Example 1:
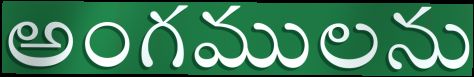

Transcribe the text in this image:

అంగములను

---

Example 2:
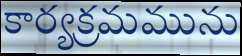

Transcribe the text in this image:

కార్యక్రమమును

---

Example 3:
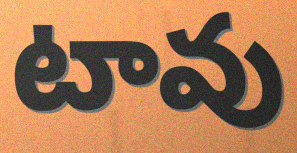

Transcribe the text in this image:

టావు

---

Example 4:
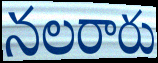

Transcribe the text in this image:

నలరారు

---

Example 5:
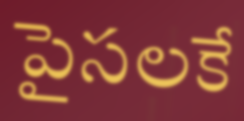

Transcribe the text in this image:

పైసలకే